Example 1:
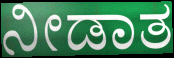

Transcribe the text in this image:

ನೀಡಾತ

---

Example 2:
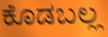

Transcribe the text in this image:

ಕೊಡಬಲ್ಲ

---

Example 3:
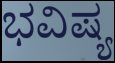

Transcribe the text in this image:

ಭವಿಷ್ಯ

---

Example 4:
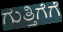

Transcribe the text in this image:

ಗುತ್ತಿಗೆಗೆ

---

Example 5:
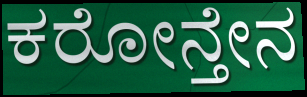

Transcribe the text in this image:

ಕರೋನ್ತೇನ